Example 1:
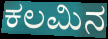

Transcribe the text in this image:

ಕಲಮಿನ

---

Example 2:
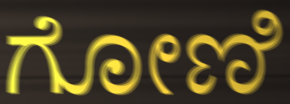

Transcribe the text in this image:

ಗೋಣಿ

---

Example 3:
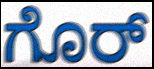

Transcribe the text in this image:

ಗೊರ್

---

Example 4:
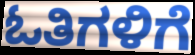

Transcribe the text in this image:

ಓತಿಗಳಿಗೆ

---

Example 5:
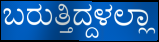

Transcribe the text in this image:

ಬರುತ್ತಿದ್ದಳಲ್ಲಾ